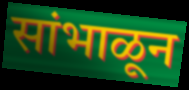
सांभाळून